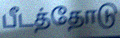
பீடத்தோடு